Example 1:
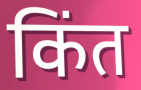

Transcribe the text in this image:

किंत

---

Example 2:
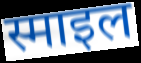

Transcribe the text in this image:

स्माइल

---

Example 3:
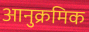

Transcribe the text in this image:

आनुक्रमिक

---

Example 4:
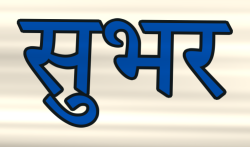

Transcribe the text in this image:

सुभर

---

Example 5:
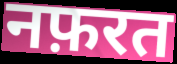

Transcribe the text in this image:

नफ़रत